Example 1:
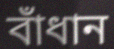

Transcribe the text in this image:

বাঁধান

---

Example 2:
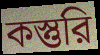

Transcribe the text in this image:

কস্তুরি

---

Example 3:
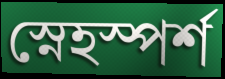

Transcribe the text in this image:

স্নেহস্পর্শ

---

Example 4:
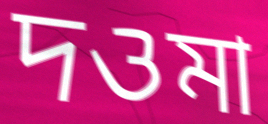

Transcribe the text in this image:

দওমা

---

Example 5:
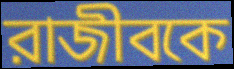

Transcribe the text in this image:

রাজীবকে